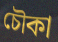
চৌকা